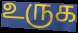
உருக